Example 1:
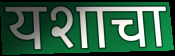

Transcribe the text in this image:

यशाचा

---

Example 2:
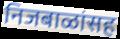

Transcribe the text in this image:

निजबाळांसह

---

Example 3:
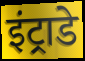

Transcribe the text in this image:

इंट्राडे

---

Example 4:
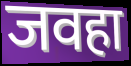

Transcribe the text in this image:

जवहा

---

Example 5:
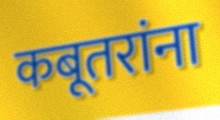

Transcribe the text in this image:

कबूतरांना